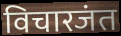
विचारजंत